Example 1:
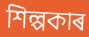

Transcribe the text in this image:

শিল্পকাৰ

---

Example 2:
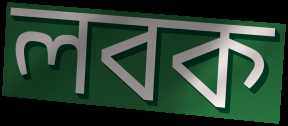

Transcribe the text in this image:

লবক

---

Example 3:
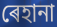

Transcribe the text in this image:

ৰেহানা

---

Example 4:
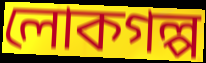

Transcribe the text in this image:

লোকগল্প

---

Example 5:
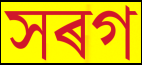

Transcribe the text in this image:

সৰগ